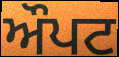
ਔਪਟ